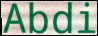
Abdi